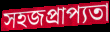
সহজপ্রাপ্যতা